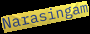
Narasingam